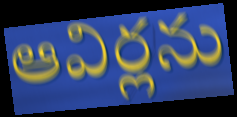
ఆవిర్లను